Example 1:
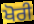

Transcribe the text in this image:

ਖੋਰੀ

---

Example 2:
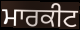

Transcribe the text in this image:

ਮਾਰਕੀਟ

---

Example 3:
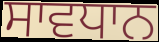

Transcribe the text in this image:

ਸਾਵਧਾਨ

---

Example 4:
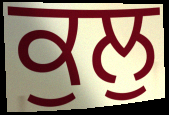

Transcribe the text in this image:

ਕੁਲੁ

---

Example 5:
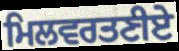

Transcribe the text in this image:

ਮਿਲਵਰਤਣੀਏ